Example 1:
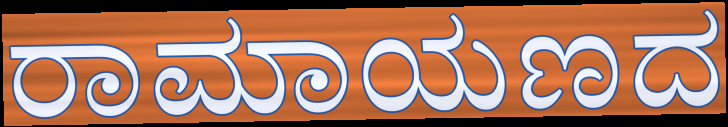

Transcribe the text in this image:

ರಾಮಾಯಣದ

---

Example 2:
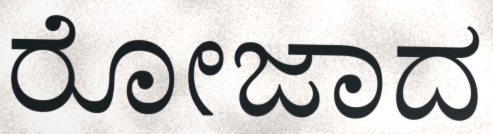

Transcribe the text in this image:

ರೋಜಾದ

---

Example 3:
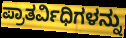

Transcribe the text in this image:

ಪ್ರಾತರ್ವಿಧಿಗಳನ್ನು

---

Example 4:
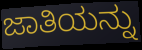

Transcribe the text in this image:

ಜಾತಿಯನ್ನು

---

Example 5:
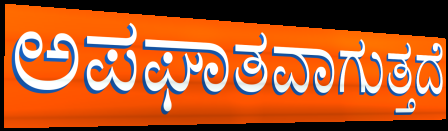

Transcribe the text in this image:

ಅಪಘಾತವಾಗುತ್ತದೆ